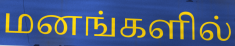
மனங்களில்